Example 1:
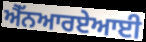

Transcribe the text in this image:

ਐੱਨਆਰਏਆਈ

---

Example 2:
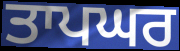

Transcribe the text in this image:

ਤਾਪਘਰ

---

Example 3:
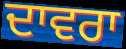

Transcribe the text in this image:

ਦਾਵਰਾ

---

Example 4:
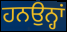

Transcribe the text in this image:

ਹਨਉਨ੍ਹਾਂ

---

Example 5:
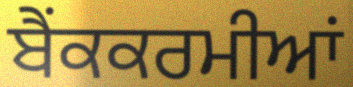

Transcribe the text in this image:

ਬੈਂਕਕਰਮੀਆਂ